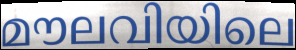
മൗലവിയിലെ